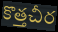
కొత్తచీర